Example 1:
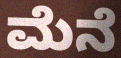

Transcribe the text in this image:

ಮೆನೆ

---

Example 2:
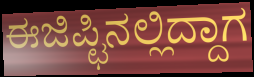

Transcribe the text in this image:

ಈಜಿಪ್ಟಿನಲ್ಲಿದ್ದಾಗ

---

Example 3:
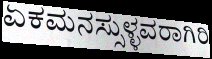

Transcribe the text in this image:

ಏಕಮನಸ್ಸುಳ್ಳವರಾಗಿರಿ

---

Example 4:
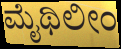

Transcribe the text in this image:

ಮೈಥಿಲೀಂ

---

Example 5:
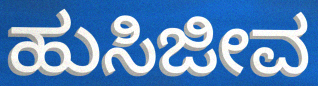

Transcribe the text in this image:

ಹುಸಿಜೀವ